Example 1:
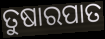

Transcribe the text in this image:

ତୁଷାରପାତ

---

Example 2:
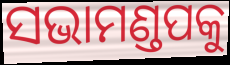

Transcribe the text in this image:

ସଭାମଣ୍ଡପକୁ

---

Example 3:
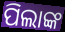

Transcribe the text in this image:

ପିଲାଙ୍କ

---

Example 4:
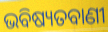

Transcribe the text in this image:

ଭବିଷ୍ୟତବାଣୀ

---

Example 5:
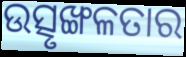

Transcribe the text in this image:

ଉତ୍ସୃଙ୍ଖଳତାର